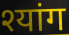
श्यांग